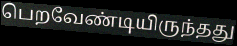
பெறவேண்டியிருந்தது